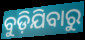
ବୁଡ଼ିଯିବାରୁ